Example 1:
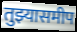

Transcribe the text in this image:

तुझ्यासमीप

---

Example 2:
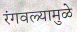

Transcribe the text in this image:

रंगवल्यामुळे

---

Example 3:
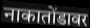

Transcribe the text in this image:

नाकातोंडावर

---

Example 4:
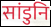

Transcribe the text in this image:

सांडुनि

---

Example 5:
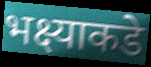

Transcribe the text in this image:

भक्ष्याकडे